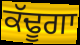
ਕੱਢੂਗਾ